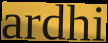
ardhi